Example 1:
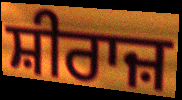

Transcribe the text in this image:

ਸ਼ੀਰਾਜ਼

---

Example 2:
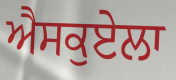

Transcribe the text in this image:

ਐਸਕੁਏਲਾ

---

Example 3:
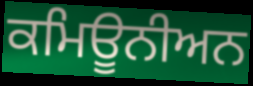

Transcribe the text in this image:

ਕਮਿਊਨੀਅਨ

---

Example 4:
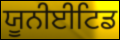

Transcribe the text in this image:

ਯੂਨੀਈਟਿਡ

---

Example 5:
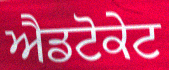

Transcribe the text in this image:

ਐਡਟੋਕੇਟ